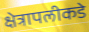
क्षेत्रापलीकडे